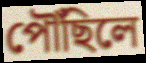
পৌঁছিলে